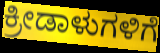
ಕ್ರೀಡಾಳುಗಳಿಗೆ